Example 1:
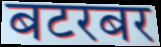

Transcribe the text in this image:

बटरबर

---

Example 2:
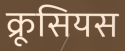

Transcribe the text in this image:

क्रूसियस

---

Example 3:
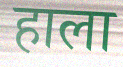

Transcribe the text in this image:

हाला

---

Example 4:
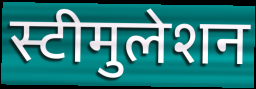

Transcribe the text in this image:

स्टीमुलेशन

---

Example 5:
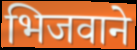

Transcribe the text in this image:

भिजवाने